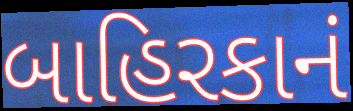
બાહિરકાનં